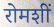
रोमशीं